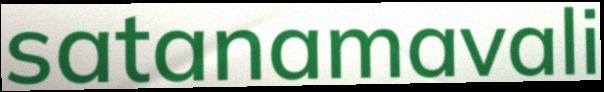
satanamavali